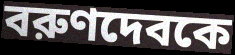
বরুণদেবকে